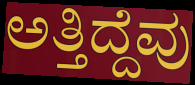
ಅತ್ತಿದ್ದೆವು